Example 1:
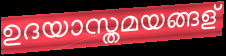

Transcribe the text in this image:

ഉദയാസ്തമയങ്ങള്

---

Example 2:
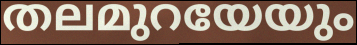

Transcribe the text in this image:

തലമുറയേയും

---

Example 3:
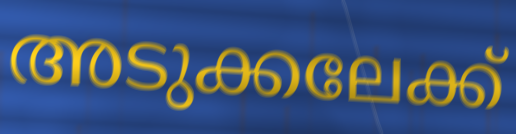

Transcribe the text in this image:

അടുക്കലേക്ക്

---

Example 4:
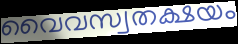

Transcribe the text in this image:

വൈവസ്വതക്ഷയം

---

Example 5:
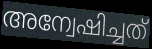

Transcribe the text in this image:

അന്വേഷിച്ചത്